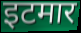
इटमार